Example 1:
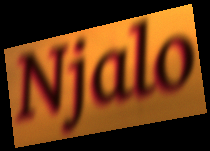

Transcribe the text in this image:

Njalo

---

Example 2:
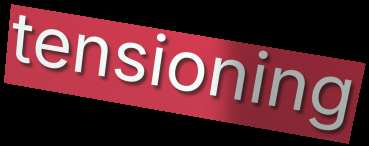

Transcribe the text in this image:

tensioning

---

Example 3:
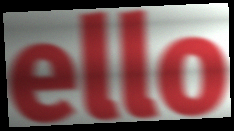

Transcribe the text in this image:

ello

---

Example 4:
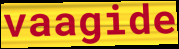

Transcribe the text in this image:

vaagide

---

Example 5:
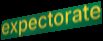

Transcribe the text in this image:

expectorate